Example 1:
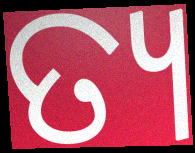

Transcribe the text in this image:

ତ୍ୟ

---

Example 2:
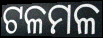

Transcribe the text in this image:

ଟଳମଳ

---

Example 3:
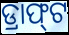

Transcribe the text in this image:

ଡ୍ରାଫ୍‌ଟ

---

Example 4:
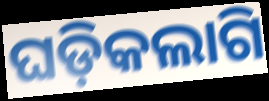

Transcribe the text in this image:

ଘଡ଼ିକଲାଗି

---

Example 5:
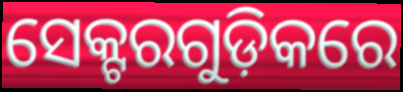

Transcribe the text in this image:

ସେକ୍ଟରଗୁଡ଼ିକରେ